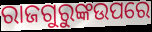
ରାଜଗୁରୁଙ୍କଉପରେ